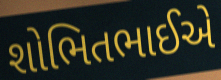
શોભિતભાઈએ